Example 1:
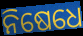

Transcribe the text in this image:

ନିଷେଧେ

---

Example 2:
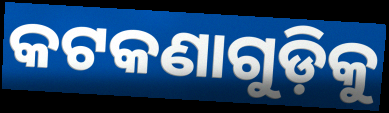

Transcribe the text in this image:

କଟକଣାଗୁଡ଼ିକୁ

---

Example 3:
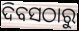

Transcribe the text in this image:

ଦିବସଠାରୁ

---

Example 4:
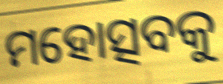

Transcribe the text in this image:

ମହୋତ୍ସବକୁ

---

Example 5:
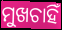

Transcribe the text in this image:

ମୁଖଚାହିଁ